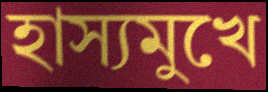
হাস্যমুখে